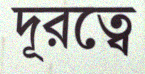
দূরত্বে